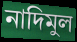
নাদিমুল